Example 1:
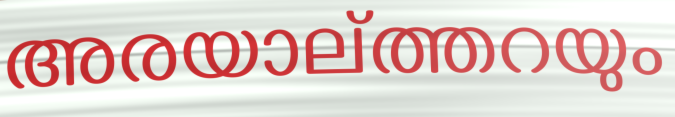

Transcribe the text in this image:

അരയാല്ത്തറയും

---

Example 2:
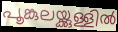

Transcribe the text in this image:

പൂങ്കുലയ്ക്കുള്ളിൽ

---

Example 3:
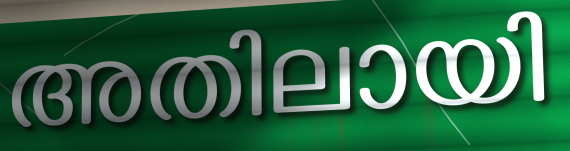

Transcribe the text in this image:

അതിലായി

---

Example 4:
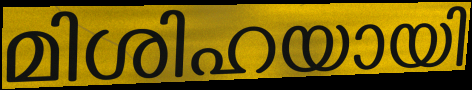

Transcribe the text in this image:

മിശിഹയായി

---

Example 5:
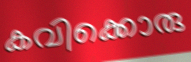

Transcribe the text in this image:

കവിക്കൊരു